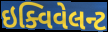
ઇક્વિવેલન્ટ